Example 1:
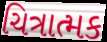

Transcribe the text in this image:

ચિત્રાત્મક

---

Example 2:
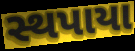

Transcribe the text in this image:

સ્થપાયા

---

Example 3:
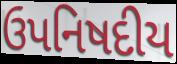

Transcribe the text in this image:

ઉપનિષદીય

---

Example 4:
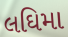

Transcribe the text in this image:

લઘિમા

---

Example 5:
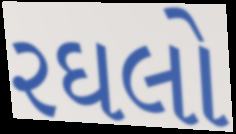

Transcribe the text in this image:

રઘલો